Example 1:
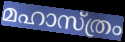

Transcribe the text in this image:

മഹാസ്ത്രം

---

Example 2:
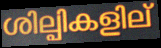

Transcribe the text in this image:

ശില്പികളില്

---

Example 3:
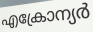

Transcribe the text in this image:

എക്രോന്യർ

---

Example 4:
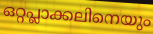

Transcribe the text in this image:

ഒറ്റപ്ലാക്കലിനെയും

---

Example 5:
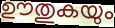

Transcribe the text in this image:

ഊതുകയും